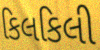
કિલકિલી